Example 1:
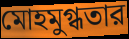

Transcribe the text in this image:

মোহমুগ্ধতার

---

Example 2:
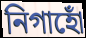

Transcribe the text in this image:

নিগাহোঁ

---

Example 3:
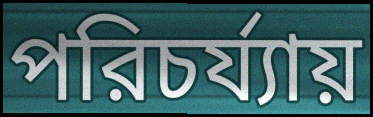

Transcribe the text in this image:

পরিচর্য্যায়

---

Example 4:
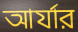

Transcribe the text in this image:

আর্যার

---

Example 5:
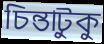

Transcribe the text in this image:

চিন্তাটুকু